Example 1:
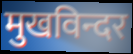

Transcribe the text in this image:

मुखविन्दर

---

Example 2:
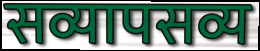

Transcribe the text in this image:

सव्यापसव्य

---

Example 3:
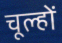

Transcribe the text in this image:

चूल्हों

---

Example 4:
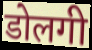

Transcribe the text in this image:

डोलगी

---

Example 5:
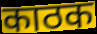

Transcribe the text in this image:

काठक